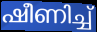
ഷീണിച്ച്